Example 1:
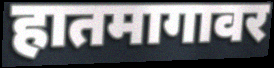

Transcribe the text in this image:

हातमागावर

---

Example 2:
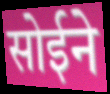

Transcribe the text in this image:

सोईने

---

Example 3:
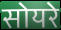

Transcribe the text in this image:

सोयरे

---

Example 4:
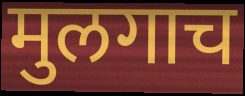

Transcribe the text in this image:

मुलगाच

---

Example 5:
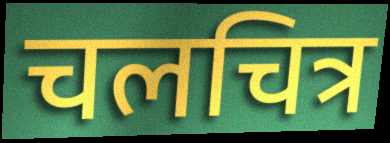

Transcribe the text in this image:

चलचित्र